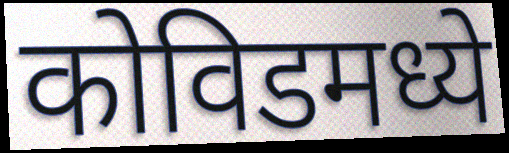
कोविडमध्ये